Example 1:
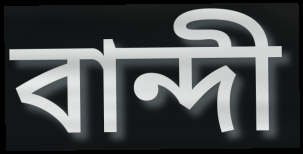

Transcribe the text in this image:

বান্দী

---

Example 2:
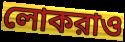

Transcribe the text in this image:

লোকরাও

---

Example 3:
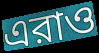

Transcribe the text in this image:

এরাও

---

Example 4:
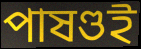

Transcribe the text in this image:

পাষণ্ডই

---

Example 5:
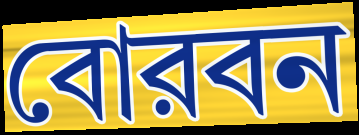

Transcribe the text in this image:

বোরবন